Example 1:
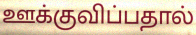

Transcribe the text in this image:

ஊக்குவிப்பதால்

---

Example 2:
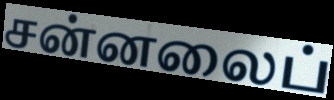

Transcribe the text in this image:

சன்னலைப்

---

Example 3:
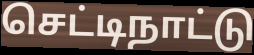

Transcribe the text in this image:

செட்டிநாட்டு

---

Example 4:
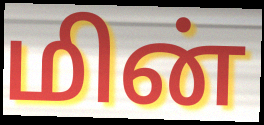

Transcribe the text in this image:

மின்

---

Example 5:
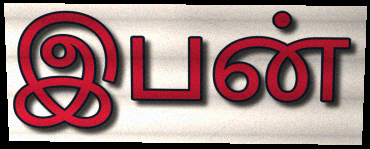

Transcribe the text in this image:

இபன்